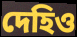
দেহিও